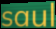
saul